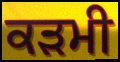
ਕੜਮੀ